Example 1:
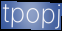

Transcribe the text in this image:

tpopj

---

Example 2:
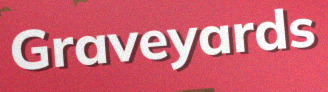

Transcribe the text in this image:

Graveyards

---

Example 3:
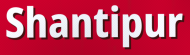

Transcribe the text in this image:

Shantipur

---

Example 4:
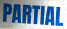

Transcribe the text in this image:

PARTIAL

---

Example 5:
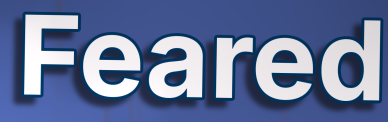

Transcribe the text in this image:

Feared